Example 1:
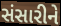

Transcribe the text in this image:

સંસારીને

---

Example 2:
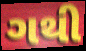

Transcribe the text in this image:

ગથી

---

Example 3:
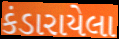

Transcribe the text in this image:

કંડારાયેલા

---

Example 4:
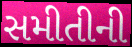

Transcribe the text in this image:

સમીતીની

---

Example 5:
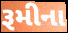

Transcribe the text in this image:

રૂમીના